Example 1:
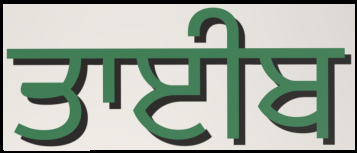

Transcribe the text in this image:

ਤਾਈਬ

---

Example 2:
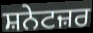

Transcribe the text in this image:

ਸ਼ਨੇਟਜ਼ਰ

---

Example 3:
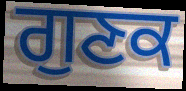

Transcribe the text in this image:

ਗੁਣਕ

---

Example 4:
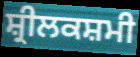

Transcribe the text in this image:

ਸ਼੍ਰੀਲਕਸ਼ਮੀ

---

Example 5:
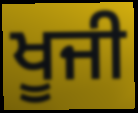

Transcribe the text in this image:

ਖੂਜੀ